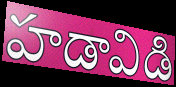
హడావిడి